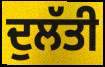
ਦੁਲੱਤੀ